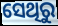
ସେଥିରୁ